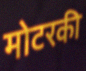
मोटरकी